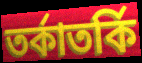
তৰ্কাতৰ্কি